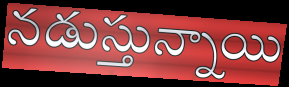
నడుస్తున్నాయి